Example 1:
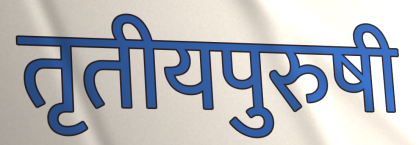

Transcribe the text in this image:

तृतीयपुरुषी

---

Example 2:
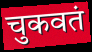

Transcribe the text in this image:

चुकवतं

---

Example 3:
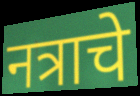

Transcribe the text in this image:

नत्राचे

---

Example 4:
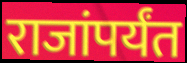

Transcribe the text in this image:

राजांपर्यंत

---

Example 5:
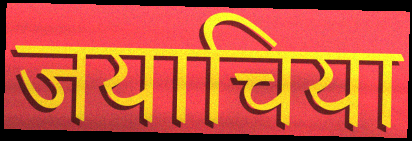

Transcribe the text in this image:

जयाचिया